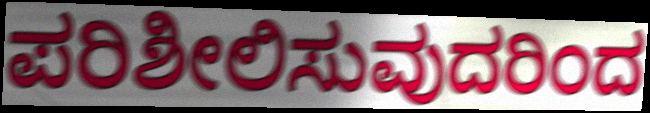
ಪರಿಶೀಲಿಸುವುದರಿಂದ